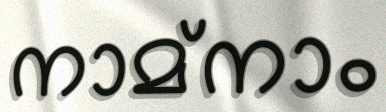
നാമ്നാം